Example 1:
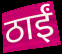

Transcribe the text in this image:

ठाईं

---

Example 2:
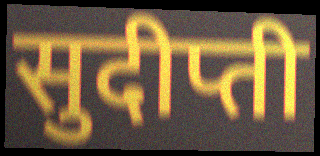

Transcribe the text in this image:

सुदीप्ती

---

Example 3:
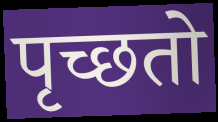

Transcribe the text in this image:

पृच्छतो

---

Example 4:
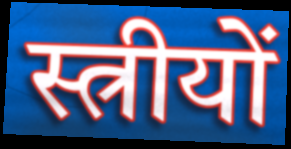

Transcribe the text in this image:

स्त्रीयों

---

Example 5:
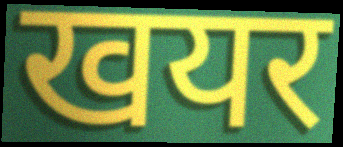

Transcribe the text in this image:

खयर